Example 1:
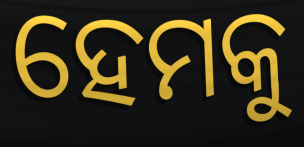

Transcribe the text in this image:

ହେମକୁ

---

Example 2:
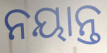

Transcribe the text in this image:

ନୟାନ୍ତ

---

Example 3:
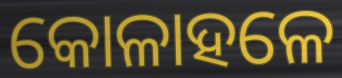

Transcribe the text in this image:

କୋଳାହଳେ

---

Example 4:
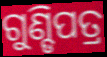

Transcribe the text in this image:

ଗୁଣ୍ଡିପତ୍ର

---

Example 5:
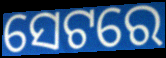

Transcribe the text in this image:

ସେଟରେ